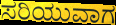
ಸರಿಯುವಾಗ